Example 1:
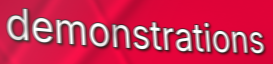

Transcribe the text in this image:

demonstrations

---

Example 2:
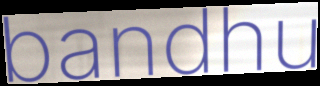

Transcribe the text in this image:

bandhu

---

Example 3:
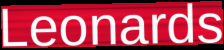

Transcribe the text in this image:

Leonards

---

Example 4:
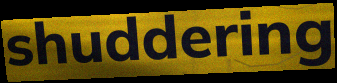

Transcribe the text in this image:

shuddering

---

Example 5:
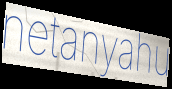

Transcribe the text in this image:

netanyahu